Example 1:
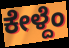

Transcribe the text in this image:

ಕೇಳ್ದೆಂ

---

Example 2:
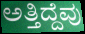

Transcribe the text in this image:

ಅತ್ತಿದ್ದೆವು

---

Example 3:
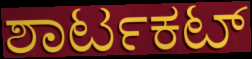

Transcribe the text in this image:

ಶಾರ್ಟಕಟ್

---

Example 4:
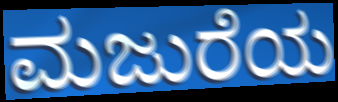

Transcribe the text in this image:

ಮಜುರೆಯ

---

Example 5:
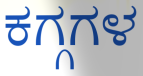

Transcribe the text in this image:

ಕಗ್ಗಗಳ